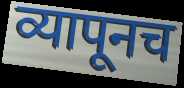
व्यापूनच